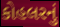
કોહલરનું